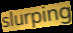
slurping